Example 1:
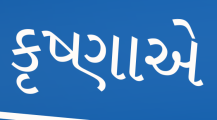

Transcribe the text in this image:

કૃષ્ણાએ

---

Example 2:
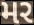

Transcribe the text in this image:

મર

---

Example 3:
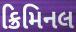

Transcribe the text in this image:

ક્રિમિનલ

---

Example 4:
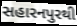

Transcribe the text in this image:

સહારનપુરથી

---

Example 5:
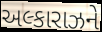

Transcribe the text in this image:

અલ્કારાઝને